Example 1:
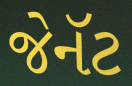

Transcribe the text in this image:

જેનૅટ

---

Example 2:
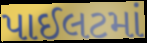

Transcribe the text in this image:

પાઈલટમાં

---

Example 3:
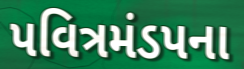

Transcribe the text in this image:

પવિત્રમંડપના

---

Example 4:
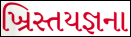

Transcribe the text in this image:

ખ્રિસ્તયજ્ઞના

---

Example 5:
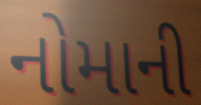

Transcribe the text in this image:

નોમાની